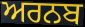
ਅਰਨਬ